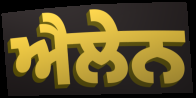
ਐਲੇਨ